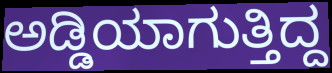
ಅಡ್ಡಿಯಾಗುತ್ತಿದ್ದ